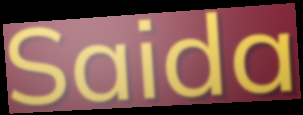
Saida